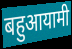
बहुआयामी